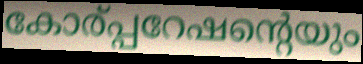
കോര്പ്പറേഷന്റെയും